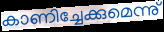
കാണിച്ചേക്കുമെന്നു്